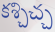
కశ్చిచ్చ